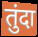
तुंदा